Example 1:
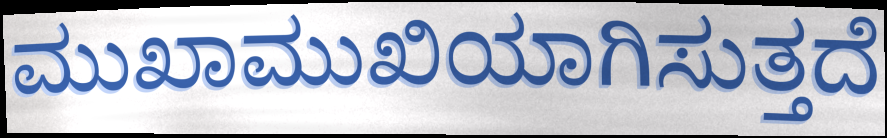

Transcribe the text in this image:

ಮುಖಾಮುಖಿಯಾಗಿಸುತ್ತದೆ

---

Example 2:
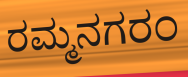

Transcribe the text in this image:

ರಮ್ಮನಗರಂ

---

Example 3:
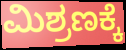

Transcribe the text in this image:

ಮಿಶ್ರಣಕ್ಕೆ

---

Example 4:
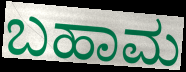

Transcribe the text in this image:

ಬಹಾಮ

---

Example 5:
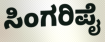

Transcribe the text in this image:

ಸಿಂಗರಿಪೈ